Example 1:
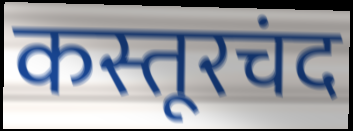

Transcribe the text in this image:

कस्तूरचंद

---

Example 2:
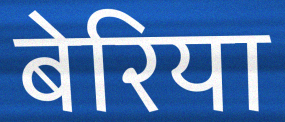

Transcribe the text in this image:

बेरिया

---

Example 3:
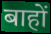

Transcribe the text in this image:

बाहों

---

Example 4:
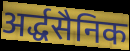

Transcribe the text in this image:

अर्द्धसैनिक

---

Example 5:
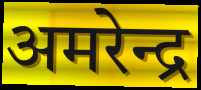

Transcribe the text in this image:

अमरेन्द्र